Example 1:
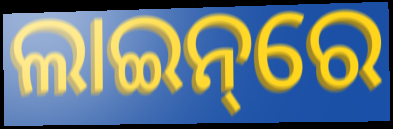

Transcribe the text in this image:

ଲାଇନ୍‌ରେ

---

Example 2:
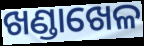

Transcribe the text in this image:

ଖଣ୍ଡାଖେଳ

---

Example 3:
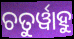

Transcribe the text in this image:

ଚତୁର୍ୱାହୁ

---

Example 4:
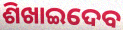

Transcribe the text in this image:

ଶିଖାଇଦେବ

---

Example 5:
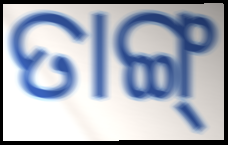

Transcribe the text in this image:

ତାଙ୍ଗ୍